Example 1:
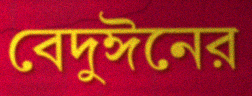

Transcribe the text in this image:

বেদুঈনের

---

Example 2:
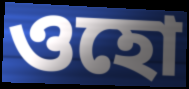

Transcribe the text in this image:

ওহো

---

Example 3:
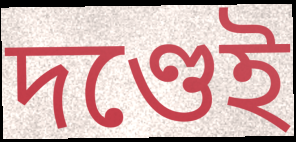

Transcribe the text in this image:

দণ্ডেই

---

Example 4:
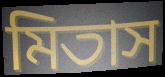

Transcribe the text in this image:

মিতাস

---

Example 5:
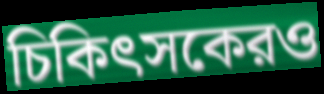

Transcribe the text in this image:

চিকিৎসকেরও